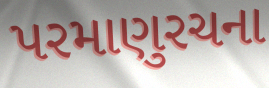
પરમાણુરચના